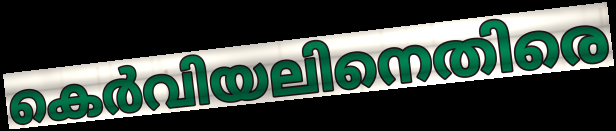
കെർവിയലിനെതിരെ